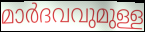
മാർദവവുമുള്ള